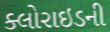
ક્લોરાઇડની